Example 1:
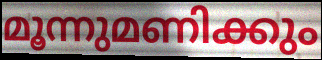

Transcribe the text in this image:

മൂന്നുമണിക്കും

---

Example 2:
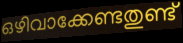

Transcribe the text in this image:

ഒഴിവാക്കേണ്ടതുണ്ട്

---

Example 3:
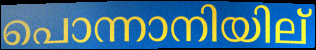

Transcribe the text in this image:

പൊന്നാനിയില്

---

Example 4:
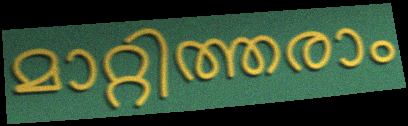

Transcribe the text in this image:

മാറ്റിത്തരാം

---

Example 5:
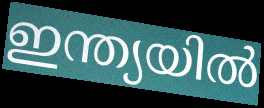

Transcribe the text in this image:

ഇന്ത്യയിൽ